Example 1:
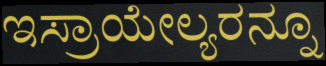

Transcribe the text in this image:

ಇಸ್ರಾಯೇಲ್ಯರನ್ನೂ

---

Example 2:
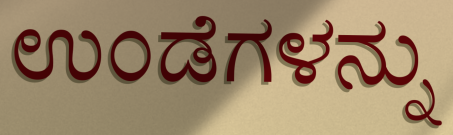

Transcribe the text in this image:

ಉಂಡೆಗಳನ್ನು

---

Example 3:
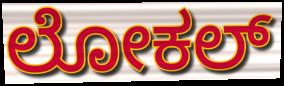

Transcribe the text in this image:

ಲೋಕಲ್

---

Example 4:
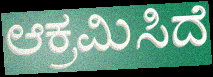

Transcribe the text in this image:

ಆಕ್ರಮಿಸಿದೆ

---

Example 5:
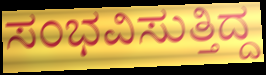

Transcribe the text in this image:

ಸಂಭವಿಸುತ್ತಿದ್ದ